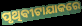
ପୃଥିବୀଟାଯାକରେ